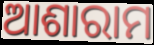
ଆଶାରାମ